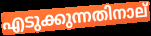
എടുക്കുന്നതിനാല്